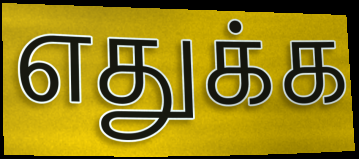
எதுக்க